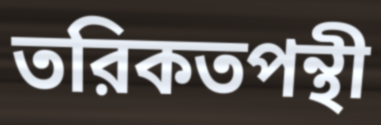
তরিকতপন্থী